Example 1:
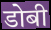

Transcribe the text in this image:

डोबी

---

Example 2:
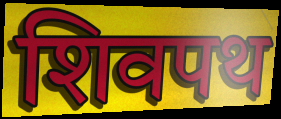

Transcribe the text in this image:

शिवपथ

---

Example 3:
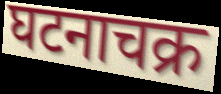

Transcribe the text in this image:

घटनाचक्र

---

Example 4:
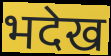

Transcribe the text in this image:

भदेख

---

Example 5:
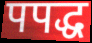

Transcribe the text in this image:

पपद्ध